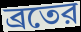
ব্রতের